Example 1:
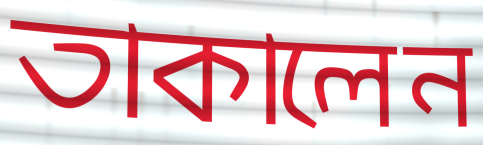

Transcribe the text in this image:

তাকালেন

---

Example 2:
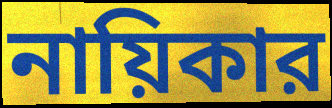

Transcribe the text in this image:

নায়িকার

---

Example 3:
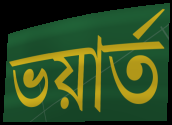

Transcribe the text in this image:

ভয়ার্ত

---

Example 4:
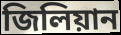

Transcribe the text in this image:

জিলিয়ান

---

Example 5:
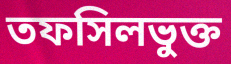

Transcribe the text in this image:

তফসিলভুক্ত